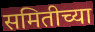
समितीच्‍या